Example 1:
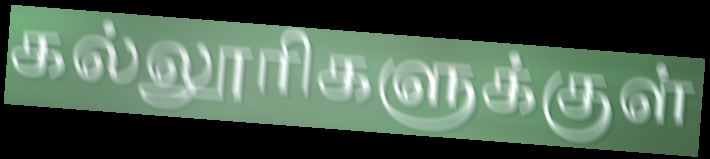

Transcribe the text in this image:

கல்லூரிகளுக்குள்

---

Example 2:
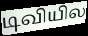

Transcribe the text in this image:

டிவியில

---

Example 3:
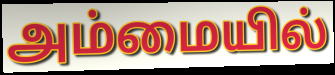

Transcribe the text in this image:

அம்மையில்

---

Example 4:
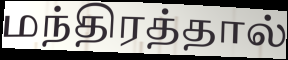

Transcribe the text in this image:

மந்திரத்தால்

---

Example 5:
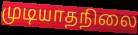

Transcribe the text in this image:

முடியாதநிலை